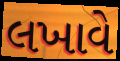
લખાવે